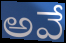
అవే